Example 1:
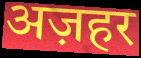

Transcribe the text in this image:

अज़हर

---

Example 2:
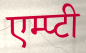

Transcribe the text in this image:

एम्प्टी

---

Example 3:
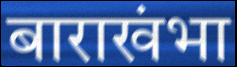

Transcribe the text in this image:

बाराखंभा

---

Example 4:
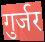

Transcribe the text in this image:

गुर्जर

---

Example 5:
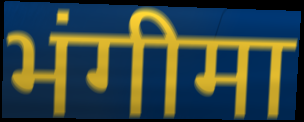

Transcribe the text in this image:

भंगीमा